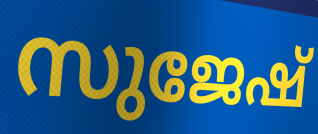
സുജേഷ്